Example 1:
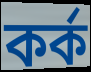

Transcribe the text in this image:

কর্ক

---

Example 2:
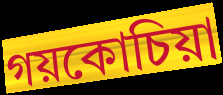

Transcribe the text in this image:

গয়কোচিয়া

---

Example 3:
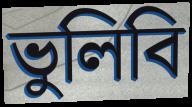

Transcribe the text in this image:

ভুলিবি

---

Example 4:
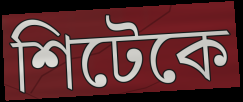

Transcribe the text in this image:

শিটেকে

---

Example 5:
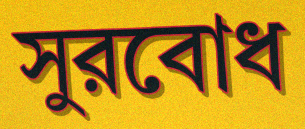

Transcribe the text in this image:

সুরবোধ